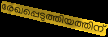
രേഖപ്പെടുത്തിയത്തിന്